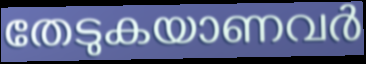
തേടുകയാണവർ